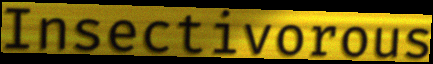
Insectivorous